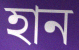
হান